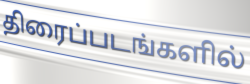
திரைப்படங்களில்